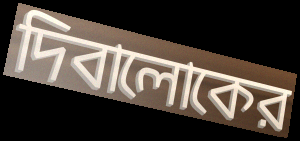
দিবালোকের